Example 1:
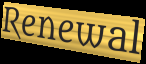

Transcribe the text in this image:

Renewal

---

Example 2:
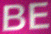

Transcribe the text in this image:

BE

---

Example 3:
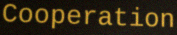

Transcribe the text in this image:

Cooperation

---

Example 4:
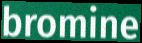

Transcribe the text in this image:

bromine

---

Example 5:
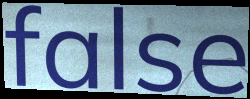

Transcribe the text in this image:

false